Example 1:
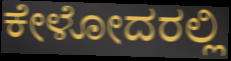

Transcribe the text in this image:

ಕೇಳೋದರಲ್ಲಿ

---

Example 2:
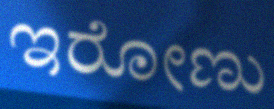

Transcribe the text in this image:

ಇರೋಣು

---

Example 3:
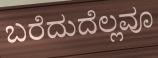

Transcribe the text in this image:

ಬರೆದುದೆಲ್ಲವೂ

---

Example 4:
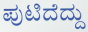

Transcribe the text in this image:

ಪುಟಿದೆದ್ದು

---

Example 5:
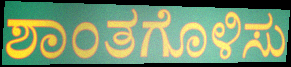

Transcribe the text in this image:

ಶಾಂತಗೊಳಿಸು